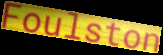
Foulston